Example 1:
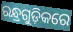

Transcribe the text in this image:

ରନ୍ଧ୍ରଗୁଡ଼ିକରେ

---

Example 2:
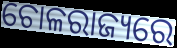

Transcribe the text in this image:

ଚୋଳରାଜ୍ୟରେ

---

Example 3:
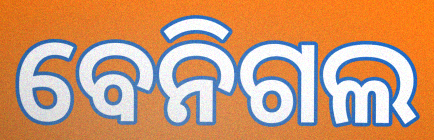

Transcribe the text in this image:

ବେନିଗଲ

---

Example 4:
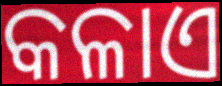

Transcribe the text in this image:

କଳାଏ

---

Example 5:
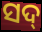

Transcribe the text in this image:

ସଦ୍